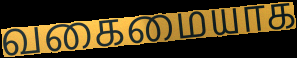
வகைமையாக